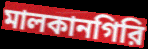
মালকানগিরি